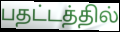
பதட்டத்தில்